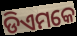
ଡିଏମକେ